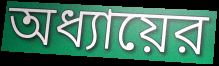
অধ্যায়ের